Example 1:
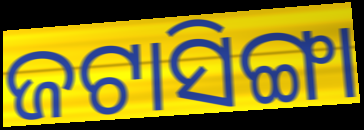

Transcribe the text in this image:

ଜଟାସିଙ୍ଗା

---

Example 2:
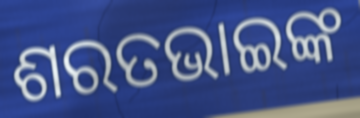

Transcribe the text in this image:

ଶରତଭାଇଙ୍କ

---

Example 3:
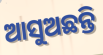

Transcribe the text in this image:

ଆସୁଅଛନ୍ତି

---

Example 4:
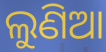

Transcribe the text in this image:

ଲୁଣିଆ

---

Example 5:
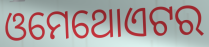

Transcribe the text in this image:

ଓମେଥୋଏଟର